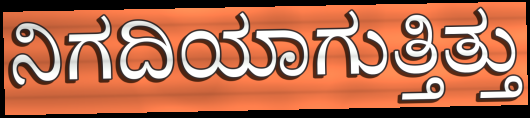
ನಿಗದಿಯಾಗುತ್ತಿತ್ತು